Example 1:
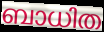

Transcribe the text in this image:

ബാധിത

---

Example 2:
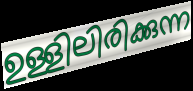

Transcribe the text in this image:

ഉള്ളിലിരിക്കുന്ന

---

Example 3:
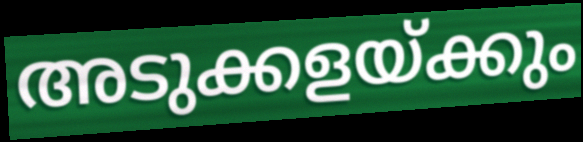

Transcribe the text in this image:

അടുക്കളയ്ക്കും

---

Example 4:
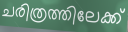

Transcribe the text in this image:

ചരിത്രത്തിലേക്ക്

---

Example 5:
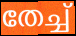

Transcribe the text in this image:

തേച്ച്